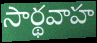
సార్థవాహ